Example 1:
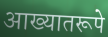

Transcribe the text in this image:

आख्यातरूपे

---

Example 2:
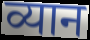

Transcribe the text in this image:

व्यान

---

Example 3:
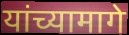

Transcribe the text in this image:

यांच्यामागे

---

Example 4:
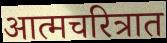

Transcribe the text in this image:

आत्मचरित्रात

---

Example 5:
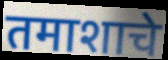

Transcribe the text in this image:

तमाशाचे